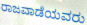
ರಾಜವಾಡೆಯವರು